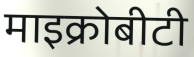
माइक्रोबीटी